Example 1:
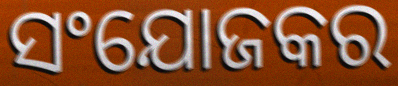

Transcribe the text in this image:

ସଂଯୋଜକର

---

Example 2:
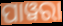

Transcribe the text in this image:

ପାୱରା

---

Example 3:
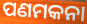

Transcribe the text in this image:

ପଣମକନା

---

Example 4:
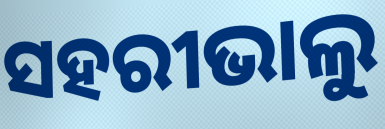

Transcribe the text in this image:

ସହରୀଭାଲୁ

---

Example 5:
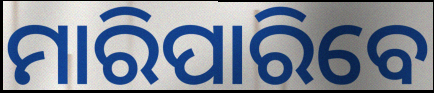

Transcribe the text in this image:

ମାରିପାରିବେ